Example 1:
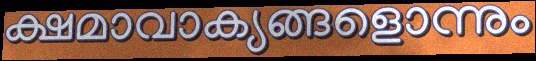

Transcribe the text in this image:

ക്ഷമാവാക്യങ്ങളൊന്നും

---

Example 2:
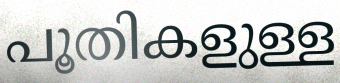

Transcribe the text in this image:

പൂതികളുള്ള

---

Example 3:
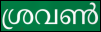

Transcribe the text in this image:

ശ്രവൺ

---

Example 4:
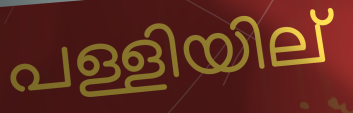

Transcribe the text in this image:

പള്ളിയില്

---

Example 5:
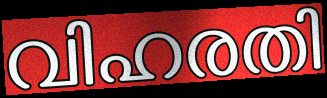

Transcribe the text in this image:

വിഹരതി